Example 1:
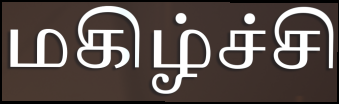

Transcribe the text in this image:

மகிழ்ச்சி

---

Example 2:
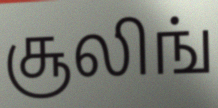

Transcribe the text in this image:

சூலிங்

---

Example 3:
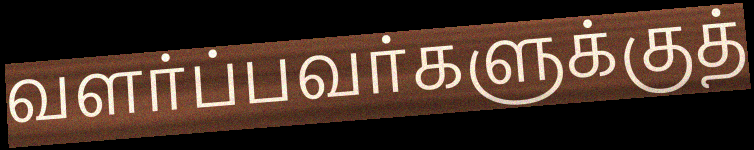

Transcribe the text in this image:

வளர்ப்பவர்களுக்குத்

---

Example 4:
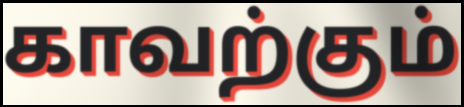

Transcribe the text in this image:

காவற்கும்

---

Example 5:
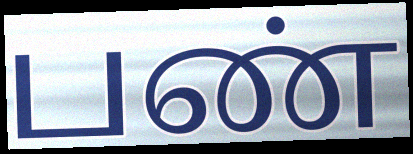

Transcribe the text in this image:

பண்